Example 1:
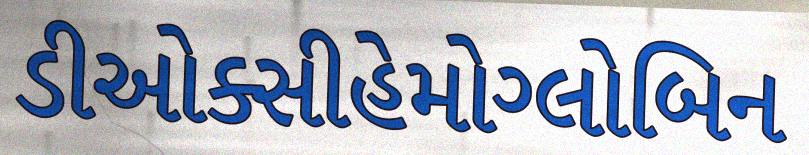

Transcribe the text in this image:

ડીઓક્સીહેમોગ્લોબિન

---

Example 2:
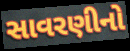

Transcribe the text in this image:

સાવરણીનો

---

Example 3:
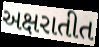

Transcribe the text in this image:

અક્ષરાતીત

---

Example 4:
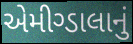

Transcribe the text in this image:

એમીગ્ડાલાનું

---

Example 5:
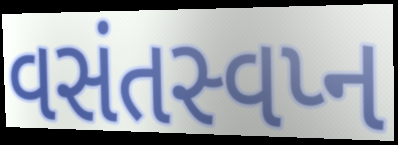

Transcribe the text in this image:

વસંતસ્વપ્ન